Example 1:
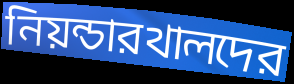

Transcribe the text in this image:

নিয়ন্ডারথালদের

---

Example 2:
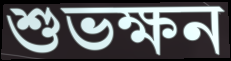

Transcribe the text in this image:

শুভক্ষন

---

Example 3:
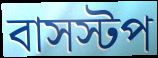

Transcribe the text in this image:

বাসস্টপ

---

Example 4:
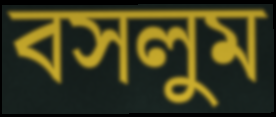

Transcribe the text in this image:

বসলুম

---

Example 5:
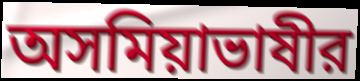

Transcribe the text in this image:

অসমিয়াভাষীর